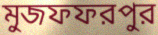
মুজফফরপুর